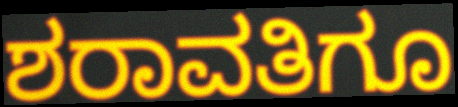
ಶರಾವತಿಗೂ